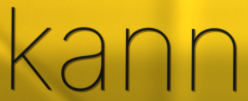
kann